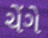
ચેંગે